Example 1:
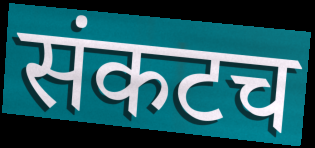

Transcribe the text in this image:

संकटच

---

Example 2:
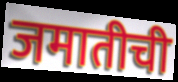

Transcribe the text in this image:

जमातीची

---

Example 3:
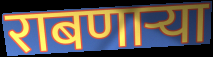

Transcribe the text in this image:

राबणार्‍या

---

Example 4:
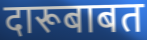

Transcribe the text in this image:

दारूबाबत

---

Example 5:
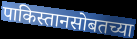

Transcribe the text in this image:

पाकिस्तानसोबतच्या